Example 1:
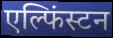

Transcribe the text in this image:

एल्फिंस्टन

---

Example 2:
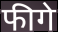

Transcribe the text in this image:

फीगे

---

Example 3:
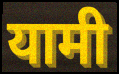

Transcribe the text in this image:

यामी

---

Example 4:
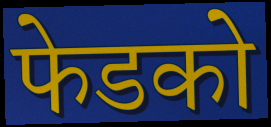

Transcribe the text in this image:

फेडको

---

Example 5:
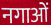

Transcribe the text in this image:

नगाओं